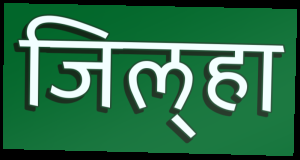
जिल्हा